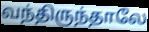
வந்திருந்தாலே